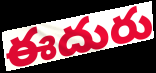
ఈదురు